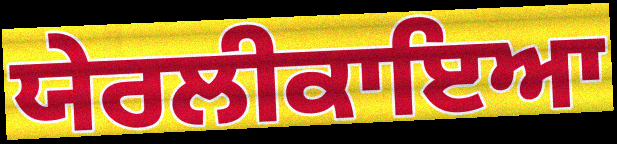
ਯੇਰਲੀਕਾਇਆ